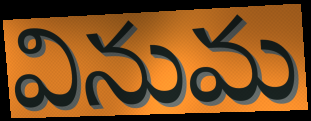
వినుమ